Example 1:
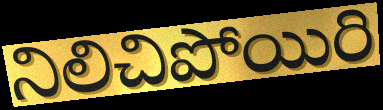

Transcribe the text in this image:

నిలిచిపోయిరి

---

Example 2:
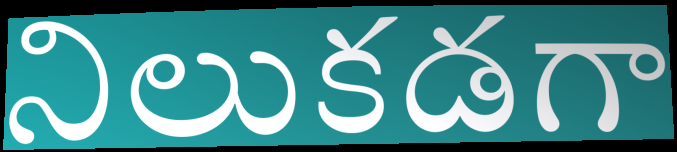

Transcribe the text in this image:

నిలుకడగా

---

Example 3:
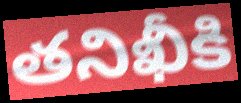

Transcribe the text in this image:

తనిఖీకి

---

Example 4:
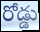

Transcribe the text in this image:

రోడ్డు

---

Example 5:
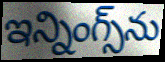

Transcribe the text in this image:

ఇన్నింగ్స్‌ను